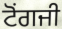
ਟੋਂਗਜੀ